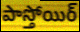
పాస్తోయిర్